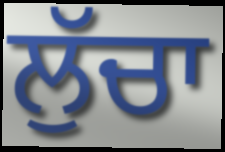
ਲੁੱਚਾ